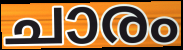
ചാരം